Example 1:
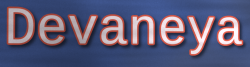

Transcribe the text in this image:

Devaneya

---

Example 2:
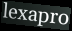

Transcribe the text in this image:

lexapro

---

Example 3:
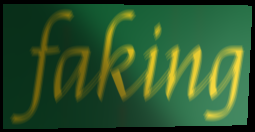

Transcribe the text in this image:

faking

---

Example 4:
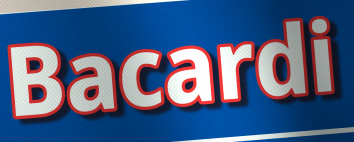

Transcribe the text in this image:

Bacardi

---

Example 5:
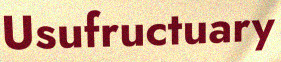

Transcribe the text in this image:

Usufructuary